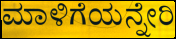
ಮಾಳಿಗೆಯನ್ನೇರಿ